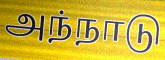
அந்நாடு